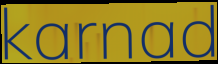
karnad